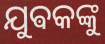
ଯୁଵକଙ୍କୁ